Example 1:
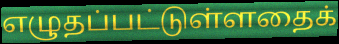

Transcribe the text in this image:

எழுதப்பட்டுள்ளதைக்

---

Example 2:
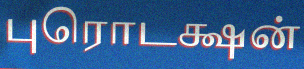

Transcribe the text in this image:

புரொடக்ஷன்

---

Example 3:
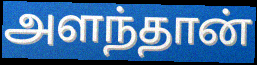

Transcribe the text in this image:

அளந்தான்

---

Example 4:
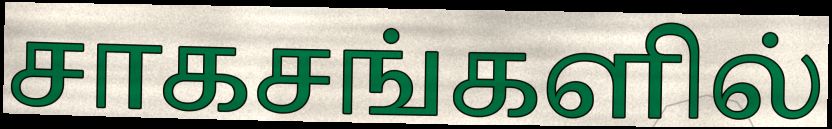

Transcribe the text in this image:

சாகசங்களில்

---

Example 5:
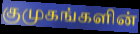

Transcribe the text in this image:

குமுகங்களின்